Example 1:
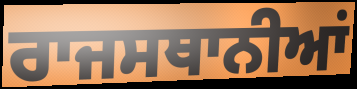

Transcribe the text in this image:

ਰਾਜਸਥਾਨੀਆਂ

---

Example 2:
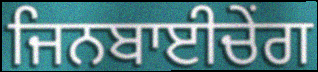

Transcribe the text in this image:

ਜਿਨਬਾਈਚੇਂਗ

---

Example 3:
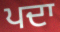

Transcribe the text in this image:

ਪਦਾ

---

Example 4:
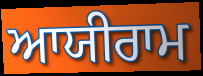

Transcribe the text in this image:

ਆਯੀਰਾਮ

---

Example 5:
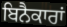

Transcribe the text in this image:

ਬਿਨੈਕਾਰਾਂ